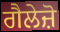
ਗੈਲੇਜ਼ੋ